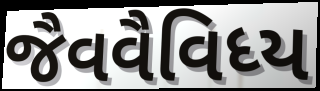
જૈવવૈવિધ્ય